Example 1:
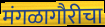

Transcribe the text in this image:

मंगळागौरीचा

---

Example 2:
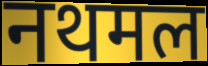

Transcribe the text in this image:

नथमल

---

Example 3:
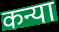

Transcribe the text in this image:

कन्या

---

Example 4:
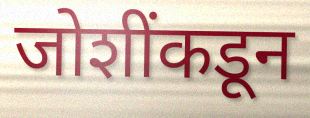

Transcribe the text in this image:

जोशींकडून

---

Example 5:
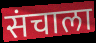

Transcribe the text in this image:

संचाला